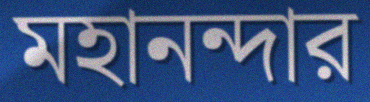
মহানন্দার